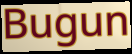
Bugun